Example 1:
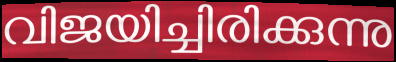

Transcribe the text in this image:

വിജയിച്ചിരിക്കുന്നു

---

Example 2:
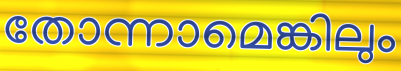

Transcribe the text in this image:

തോന്നാമെങ്കിലും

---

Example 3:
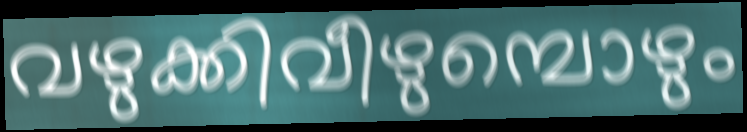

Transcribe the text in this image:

വഴുക്കിവീഴുമ്പൊഴും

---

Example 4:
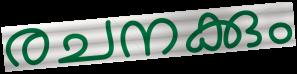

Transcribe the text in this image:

രചനക്കും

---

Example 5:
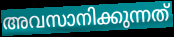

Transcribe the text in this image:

അവസാനിക്കുന്നത്